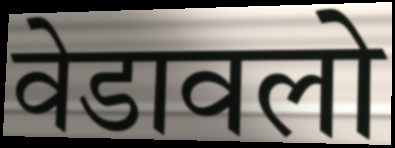
वेडावलो